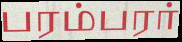
பரம்பரர்